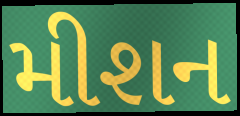
મીશન